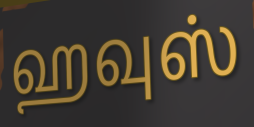
ஹவுஸ்